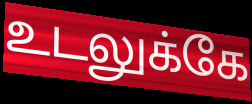
உடலுக்கே